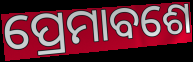
ପ୍ରେମାବଶେ